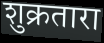
शुक्रतारा